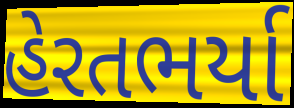
હેરતભર્યા